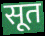
सूत